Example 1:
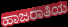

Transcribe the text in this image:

ಹಾಜರಾತಿಯ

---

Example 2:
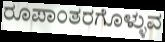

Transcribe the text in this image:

ರೂಪಾಂತರಗೊಳ್ಳುವ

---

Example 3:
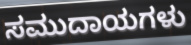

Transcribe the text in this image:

ಸಮುದಾಯಗಳು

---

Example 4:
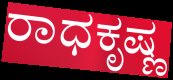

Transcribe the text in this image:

ರಾಧಕೃಷ್ಣ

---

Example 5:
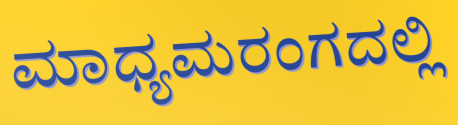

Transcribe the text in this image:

ಮಾಧ್ಯಮರಂಗದಲ್ಲಿ